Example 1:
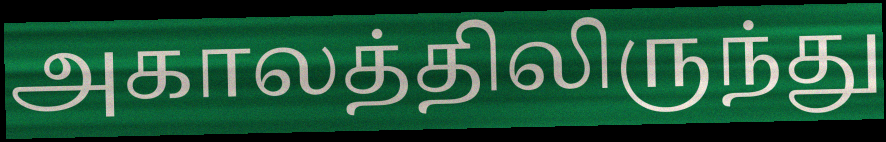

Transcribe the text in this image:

அகாலத்திலிருந்து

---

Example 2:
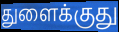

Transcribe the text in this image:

துளைக்குது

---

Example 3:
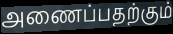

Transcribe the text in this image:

அணைப்பதற்கும்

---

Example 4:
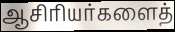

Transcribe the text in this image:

ஆசிரியர்களைத்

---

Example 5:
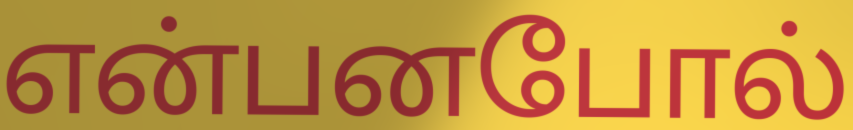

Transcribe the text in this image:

என்பனபோல்